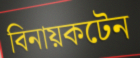
বিনায়কটেন